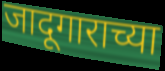
जादूगाराच्या